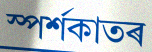
স্পৰ্শকাতৰ